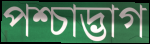
পশ্চাদ্ভাগ